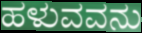
ಹಳುವವನು